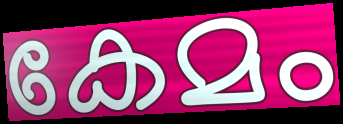
കേമം